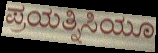
ಪ್ರಯತ್ನಿಸಿಯೂ